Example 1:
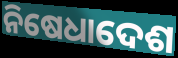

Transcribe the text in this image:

ନିଷେଧାଦେଶ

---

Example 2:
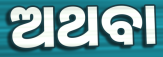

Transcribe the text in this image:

ଅଥବା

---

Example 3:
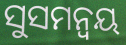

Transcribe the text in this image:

ସୁସମନ୍ଵୟ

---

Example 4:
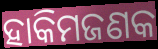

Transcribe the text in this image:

ହାକିମଜଣକ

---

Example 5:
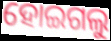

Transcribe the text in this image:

ହୋଇଗଲୁ